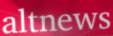
altnews